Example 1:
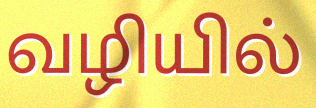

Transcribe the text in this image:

வழியில்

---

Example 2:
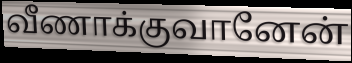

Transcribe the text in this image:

வீணாக்குவானேன்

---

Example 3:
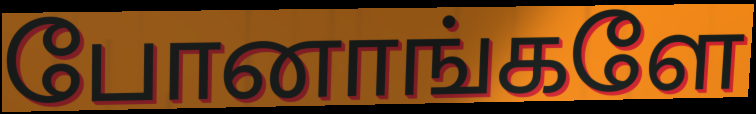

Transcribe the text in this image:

போனாங்களே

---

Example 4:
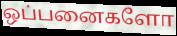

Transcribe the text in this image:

ஒப்பனைகளோ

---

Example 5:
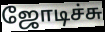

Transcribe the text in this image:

ஜோடிச்சு